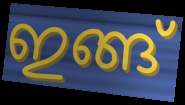
ഇങ്ങ്